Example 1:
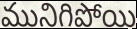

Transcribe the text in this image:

మునిగిపోయి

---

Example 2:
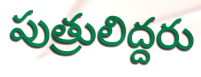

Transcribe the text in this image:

పుత్రులిద్దరు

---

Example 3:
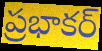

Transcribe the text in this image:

ప్రభాకర్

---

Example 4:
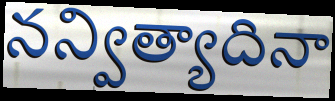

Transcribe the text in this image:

నన్విత్యాదినా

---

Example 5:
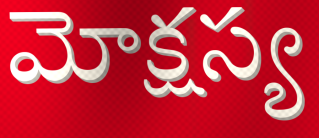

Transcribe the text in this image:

మోక్షస్య